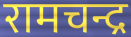
रामचन्‍द्र